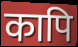
कापि